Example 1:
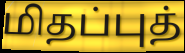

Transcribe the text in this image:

மிதப்புத்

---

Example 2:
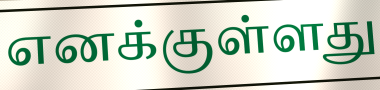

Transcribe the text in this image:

எனக்குள்ளது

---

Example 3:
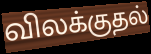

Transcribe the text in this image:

விலக்குதல்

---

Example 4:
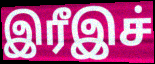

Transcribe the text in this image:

இரீஇச்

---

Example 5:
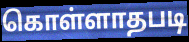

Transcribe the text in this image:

கொள்ளாதபடி